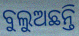
ବୁଲୁଅଛନ୍ତି